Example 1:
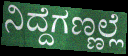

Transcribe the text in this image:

ನಿದ್ದೆಗಣ್ಣಲ್ಲೆ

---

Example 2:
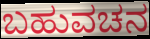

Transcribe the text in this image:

ಬಹುವಚನ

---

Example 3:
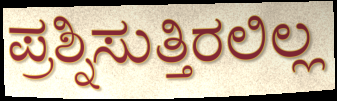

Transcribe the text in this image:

ಪ್ರಶ್ನಿಸುತ್ತಿರಲಿಲ್ಲ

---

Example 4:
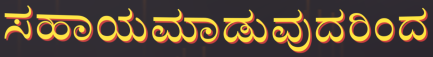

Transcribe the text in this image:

ಸಹಾಯಮಾಡುವುದರಿಂದ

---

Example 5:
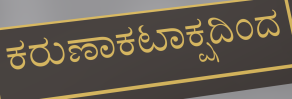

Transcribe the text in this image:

ಕರುಣಾಕಟಾಕ್ಷದಿಂದ